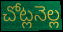
చోట్లనెల్ల